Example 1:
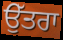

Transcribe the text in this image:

ਉੱਤਰਾ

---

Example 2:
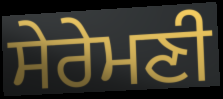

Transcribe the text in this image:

ਸੇਰੇਮਣੀ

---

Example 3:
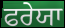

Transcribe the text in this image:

ਫਰੇਯਾ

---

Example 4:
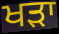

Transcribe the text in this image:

ਖਡ਼ਾ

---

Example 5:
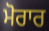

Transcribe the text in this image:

ਮੋਰਾਰ